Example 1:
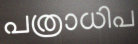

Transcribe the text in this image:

പത്രാധിപ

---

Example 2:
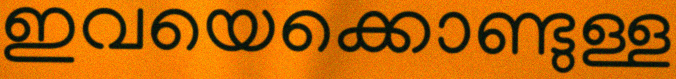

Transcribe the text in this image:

ഇവയെക്കൊണ്ടുള്ള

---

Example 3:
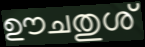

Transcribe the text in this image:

ഊചതുശ്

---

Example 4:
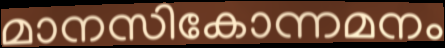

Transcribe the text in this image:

മാനസികോന്നമനം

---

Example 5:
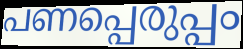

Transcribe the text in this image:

പണപ്പെരുപ്പം